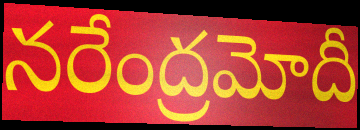
నరేంద్రమోదీ